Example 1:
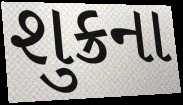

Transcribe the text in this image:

શુક્રના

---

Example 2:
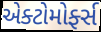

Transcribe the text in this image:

એક્ટોમોર્ફ્સ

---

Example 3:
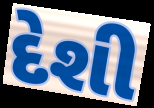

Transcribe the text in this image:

દેશી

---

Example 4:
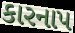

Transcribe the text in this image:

કારનાપ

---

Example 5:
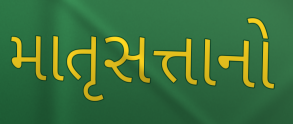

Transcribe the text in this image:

માતૃસત્તાનો